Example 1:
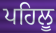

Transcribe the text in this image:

ਪਹਿਲੂ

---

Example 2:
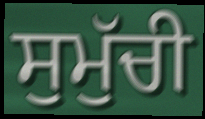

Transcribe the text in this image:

ਸੁਮੁੱਚੀ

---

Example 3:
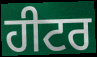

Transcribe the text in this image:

ਹੀਟਰ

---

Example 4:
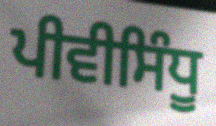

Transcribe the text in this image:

ਪੀਵੀਸਿੰਧੂ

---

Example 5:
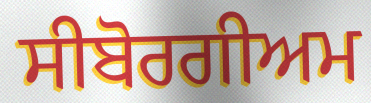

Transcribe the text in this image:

ਸੀਬੋਰਗੀਅਮ